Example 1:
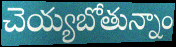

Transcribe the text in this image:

చెయ్యబోతున్నాం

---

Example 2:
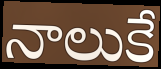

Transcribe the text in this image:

నాలుకే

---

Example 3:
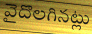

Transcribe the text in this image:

వైదొలగినట్లు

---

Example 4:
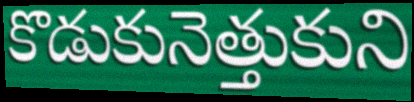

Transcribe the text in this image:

కొడుకునెత్తుకుని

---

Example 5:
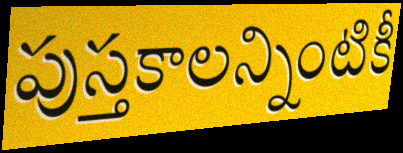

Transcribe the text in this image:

పుస్తకాలన్నింటికీ